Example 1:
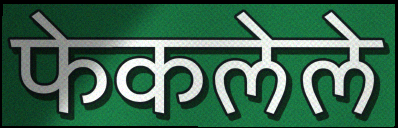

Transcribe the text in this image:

फेकलेले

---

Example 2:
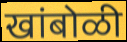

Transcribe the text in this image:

खांबोळी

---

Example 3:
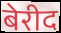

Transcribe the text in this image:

बेरीद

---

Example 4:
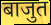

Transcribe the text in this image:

बाजुत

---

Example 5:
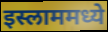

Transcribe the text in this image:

इस्लाममध्ये